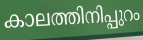
കാലത്തിനിപ്പുറം